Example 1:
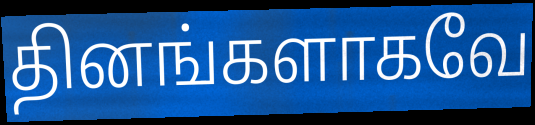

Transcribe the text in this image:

தினங்களாகவே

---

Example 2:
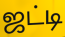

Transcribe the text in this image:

ஜட்டி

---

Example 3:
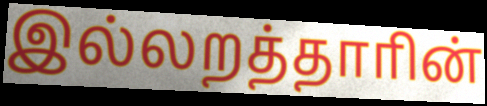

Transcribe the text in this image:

இல்லறத்தாரின்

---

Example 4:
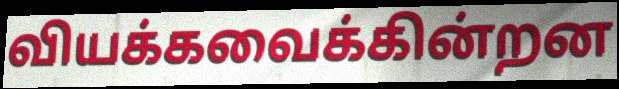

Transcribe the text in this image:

வியக்கவைக்கின்றன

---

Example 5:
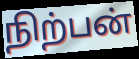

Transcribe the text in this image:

நிற்பன்